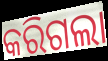
କରିଗଲା